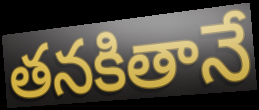
తనకితానే